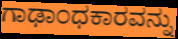
ಗಾಢಾಂಧಕಾರವನ್ನು